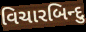
વિચારબિન્દુ